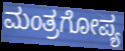
ಮಂತ್ರಗೋಪ್ಯ